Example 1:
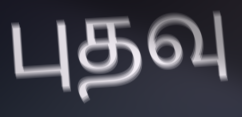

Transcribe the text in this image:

புதவு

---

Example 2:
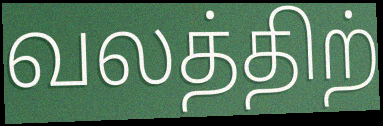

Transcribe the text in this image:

வலத்திற்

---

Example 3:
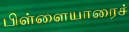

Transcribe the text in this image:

பிள்ளையாரைச்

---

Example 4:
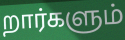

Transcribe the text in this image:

றார்களும்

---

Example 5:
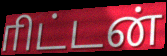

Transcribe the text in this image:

ரிட்டன்